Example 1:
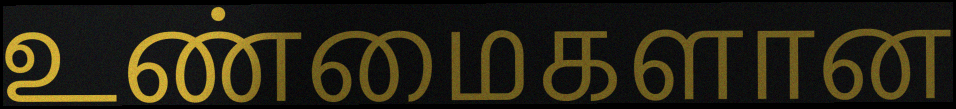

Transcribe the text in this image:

உண்மைகளான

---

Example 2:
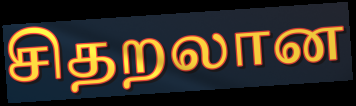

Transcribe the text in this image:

சிதறலான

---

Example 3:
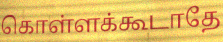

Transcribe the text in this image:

கொள்ளக்கூடாதே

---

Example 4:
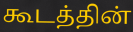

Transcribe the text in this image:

கூடத்தின்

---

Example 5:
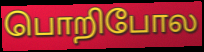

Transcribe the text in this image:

பொறிபோல